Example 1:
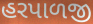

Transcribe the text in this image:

હરપાળજી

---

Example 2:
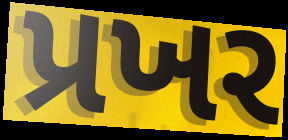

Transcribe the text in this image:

પ્રખર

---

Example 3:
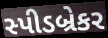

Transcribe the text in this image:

સ્પીડબ્રેકર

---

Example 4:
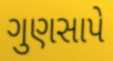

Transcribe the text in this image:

ગુણસાપે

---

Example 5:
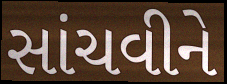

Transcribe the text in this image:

સાંચવીને